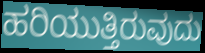
ಹರಿಯುತ್ತಿರುವುದು